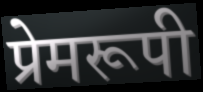
प्रेमरूपी